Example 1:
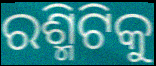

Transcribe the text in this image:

ରଶ୍ମିଟିକୁ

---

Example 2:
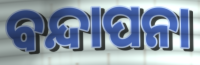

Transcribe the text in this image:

ବନ୍ଦାପନା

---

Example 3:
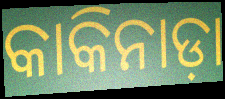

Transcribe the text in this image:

କାକିନାଡ଼ା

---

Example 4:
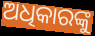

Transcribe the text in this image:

ଅଧିକାରଙ୍କୁ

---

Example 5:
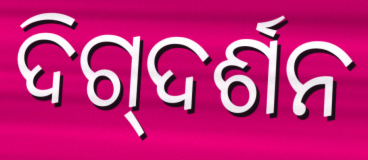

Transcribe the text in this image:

ଦିଗ୍‍ଦର୍ଶନ